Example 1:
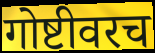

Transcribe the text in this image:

गोष्टीवरच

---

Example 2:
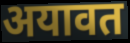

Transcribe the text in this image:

अयावत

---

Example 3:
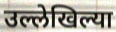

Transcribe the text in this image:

उल्लेखिल्या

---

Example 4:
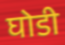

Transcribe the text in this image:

घोडी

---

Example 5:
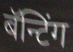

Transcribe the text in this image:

बॅन्टिंग